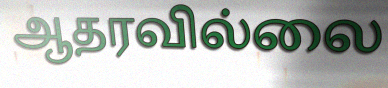
ஆதரவில்லை